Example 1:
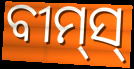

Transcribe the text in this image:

ବୀମ୍‌ସ୍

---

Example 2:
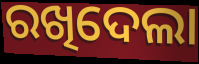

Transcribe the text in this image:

ରଖିଦେଲା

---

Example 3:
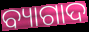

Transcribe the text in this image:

ବ୍ୟାଗାଦ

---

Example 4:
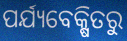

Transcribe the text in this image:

ପର୍ଯ୍ୟବେକ୍ଷିତରୁ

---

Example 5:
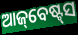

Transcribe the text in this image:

ଆଜ୍‌ବେଷ୍ଟ୍‌ସ